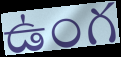
ఉంగ